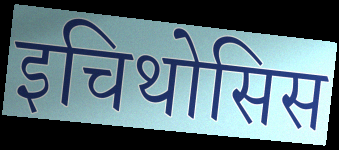
इचिथोसिस